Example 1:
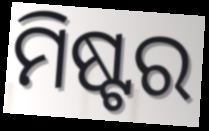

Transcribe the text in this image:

ମିଷ୍ଟର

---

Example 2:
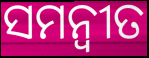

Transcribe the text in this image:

ସମନ୍ଵୀତ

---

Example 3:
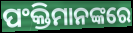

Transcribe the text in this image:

ପଂକ୍ତିମାନଙ୍କରେ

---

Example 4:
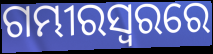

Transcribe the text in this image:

ଗମ୍ଭୀରସ୍ୱରରେ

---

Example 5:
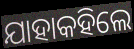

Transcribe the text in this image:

ଯାହାକହିଲେ